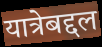
यात्रेबद्दल